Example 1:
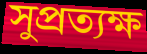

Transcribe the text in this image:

সুপ্রত্যক্ষ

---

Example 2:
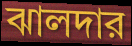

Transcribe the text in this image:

ঝালদার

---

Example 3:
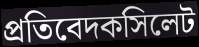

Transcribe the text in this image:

প্রতিবেদকসিলেট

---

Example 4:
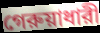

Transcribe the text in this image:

গেরুয়াধারী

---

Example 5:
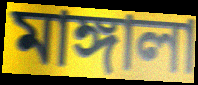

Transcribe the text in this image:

মাঙ্গালা